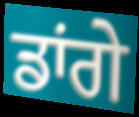
ਡਾਂਗੇ